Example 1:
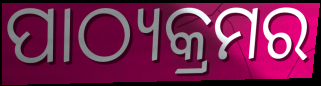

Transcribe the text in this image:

ପାଠ୍ୟକ୍ରମର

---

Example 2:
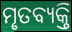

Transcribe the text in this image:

ମୃତବ୍ୟକ୍ତି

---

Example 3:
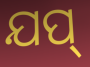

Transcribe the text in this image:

ଯପ୍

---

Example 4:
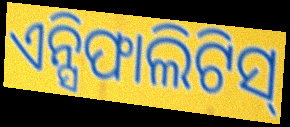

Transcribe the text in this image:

ଏନ୍ସିଫାଲିଟିସ୍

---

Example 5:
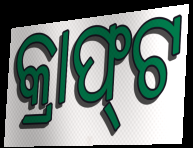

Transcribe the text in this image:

କ୍ରାଫ୍‌ଟ